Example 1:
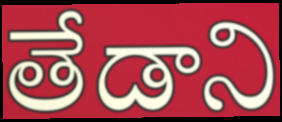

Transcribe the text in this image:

తేడాని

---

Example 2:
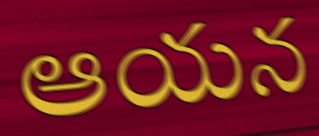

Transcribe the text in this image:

ఆయన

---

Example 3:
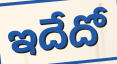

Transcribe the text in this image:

ఇదేదో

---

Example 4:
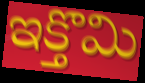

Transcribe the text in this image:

ఇక్తొమి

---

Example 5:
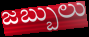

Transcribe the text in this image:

జబ్బులు